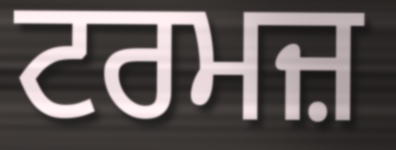
ਟਰਮਜ਼